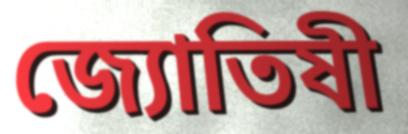
জ্যোতিষী